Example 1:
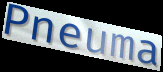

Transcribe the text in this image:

Pneuma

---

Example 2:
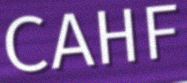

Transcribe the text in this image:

CAHF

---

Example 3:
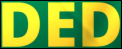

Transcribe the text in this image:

DED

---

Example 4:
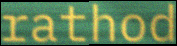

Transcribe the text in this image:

rathod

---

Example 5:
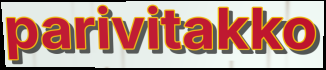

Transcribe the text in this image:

parivitakko